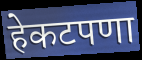
हेकटपणा